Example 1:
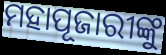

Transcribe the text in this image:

ମହାପୂଜାରୀଙ୍କୁ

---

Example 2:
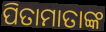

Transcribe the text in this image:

ପିତାମାତାଙ୍କ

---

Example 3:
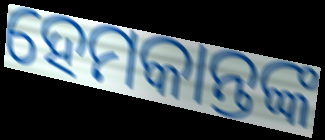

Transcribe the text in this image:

ହେମକାନ୍ତଙ୍କ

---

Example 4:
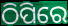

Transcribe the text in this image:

ଠିପିରେ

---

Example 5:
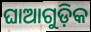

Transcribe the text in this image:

ଘାଆଗୁଡ଼ିକ